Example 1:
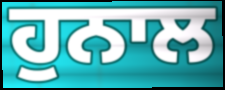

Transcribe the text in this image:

ਹੁਨਾਲ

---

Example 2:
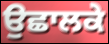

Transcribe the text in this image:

ਉਛਾਲਕੇ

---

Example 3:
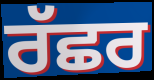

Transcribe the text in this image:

ਰੱਛਰ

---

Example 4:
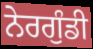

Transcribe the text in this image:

ਨੇਰਗੁੰਡੀ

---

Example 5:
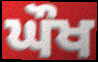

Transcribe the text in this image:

ਘੌਖ